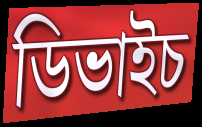
ডিভাইচ